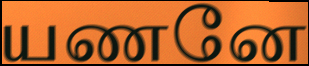
யணனே